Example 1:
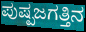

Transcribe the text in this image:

ಪುಷ್ಪಜಗತ್ತಿನ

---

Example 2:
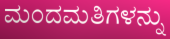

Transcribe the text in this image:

ಮಂದಮತಿಗಳನ್ನು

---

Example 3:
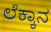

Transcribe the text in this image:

ಲೆಕ್ಕಾನ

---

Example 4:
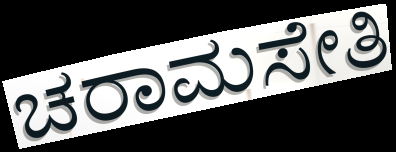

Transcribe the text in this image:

ಚರಾಮಸೇತಿ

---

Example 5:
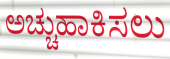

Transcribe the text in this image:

ಅಚ್ಚುಹಾಕಿಸಲು